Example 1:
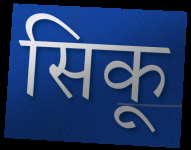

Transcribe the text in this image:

सिकू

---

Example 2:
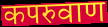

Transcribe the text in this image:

कपरुवाण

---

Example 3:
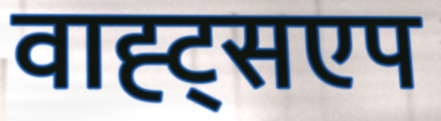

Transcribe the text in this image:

वाह्ट्सएप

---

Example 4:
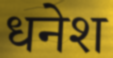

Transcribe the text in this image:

धनेश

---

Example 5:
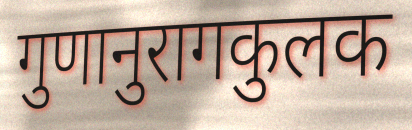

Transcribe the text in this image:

गुणानुरागकुलक